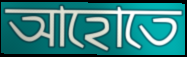
আহোতে